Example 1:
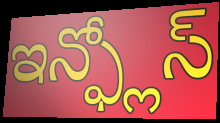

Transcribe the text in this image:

ఇన్ఫ్లోస్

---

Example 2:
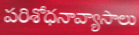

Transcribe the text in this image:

పరిశోధనావ్యాసాలు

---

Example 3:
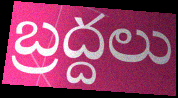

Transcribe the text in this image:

బ్రద్దలు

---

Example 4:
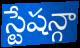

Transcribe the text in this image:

స్టేషన్గా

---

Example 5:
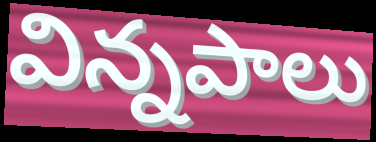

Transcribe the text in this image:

విన్నపాలు